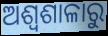
ଅଶ୍ୱଶାଳାରୁ